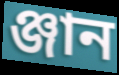
ঞ্জান